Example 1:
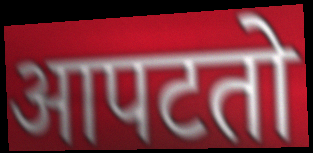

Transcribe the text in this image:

आपटतो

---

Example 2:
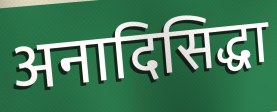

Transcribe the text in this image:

अनादिसिद्धा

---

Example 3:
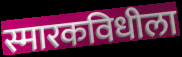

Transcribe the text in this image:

स्मारकविधीला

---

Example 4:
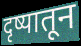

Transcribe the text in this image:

दृष्यातून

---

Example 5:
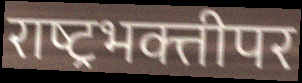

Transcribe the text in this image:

राष्ट्रभक्तीपर